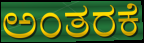
ಅಂತರಕೆ